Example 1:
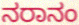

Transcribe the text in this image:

ನರಾನಂ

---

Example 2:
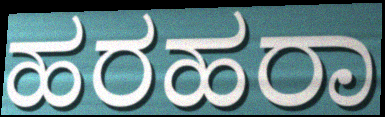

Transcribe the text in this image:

ಹರಹರಾ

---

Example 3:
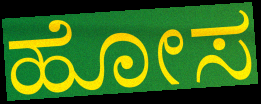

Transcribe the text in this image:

ಹೋಸ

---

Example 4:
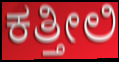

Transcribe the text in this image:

ಕತ್ತೀಲಿ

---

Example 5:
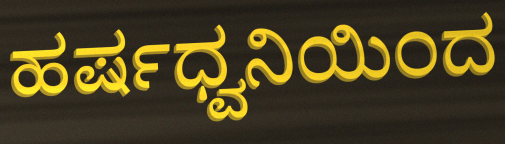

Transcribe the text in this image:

ಹರ್ಷಧ್ವನಿಯಿಂದ